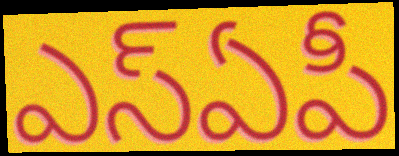
ఎస్ఏపీ